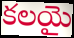
కలయై